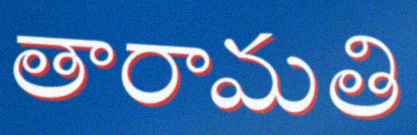
తారామతి